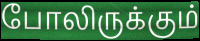
போலிருக்கும்